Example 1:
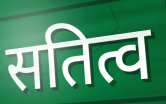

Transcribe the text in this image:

सतित्व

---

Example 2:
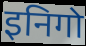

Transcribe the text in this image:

इनिगो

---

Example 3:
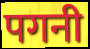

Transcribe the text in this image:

पगनी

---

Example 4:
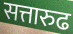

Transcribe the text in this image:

सत्तारुढ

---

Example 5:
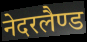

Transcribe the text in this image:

नेदरलैण्ड